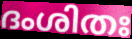
ദംശിതഃ